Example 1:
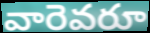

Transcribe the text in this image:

వారెవరూ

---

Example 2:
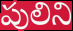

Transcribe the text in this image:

పులిని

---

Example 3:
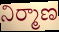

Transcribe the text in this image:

నిర్మాణ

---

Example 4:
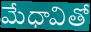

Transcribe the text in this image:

మేధావితో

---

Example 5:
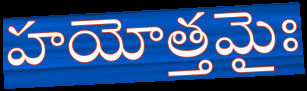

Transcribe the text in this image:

హయోత్తమైః